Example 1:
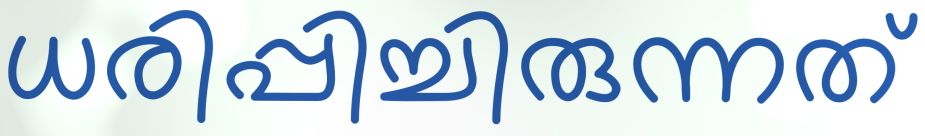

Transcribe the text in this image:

ധരിപ്പിച്ചിരുന്നത്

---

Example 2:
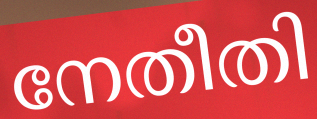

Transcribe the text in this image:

നേതീതി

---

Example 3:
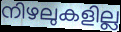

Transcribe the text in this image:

നിഴലുകളില്ല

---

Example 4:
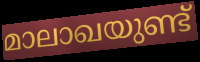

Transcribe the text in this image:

മാലാഖയുണ്ട്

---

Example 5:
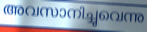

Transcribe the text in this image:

അവസാനിച്ചുവെന്നു